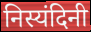
निस्यंदिनी